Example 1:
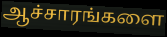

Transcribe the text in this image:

ஆச்சாரங்களை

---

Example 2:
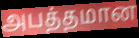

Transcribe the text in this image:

அபத்தமான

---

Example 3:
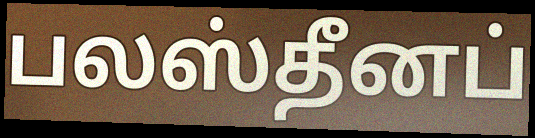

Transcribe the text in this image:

பலஸ்தீனப்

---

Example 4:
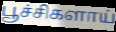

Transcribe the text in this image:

பூச்சிகளாய்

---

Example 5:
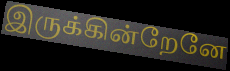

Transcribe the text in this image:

இருக்கின்றேனே